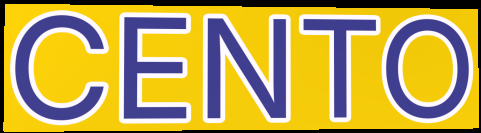
CENTO